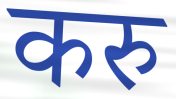
करु